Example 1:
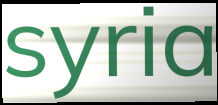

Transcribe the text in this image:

syria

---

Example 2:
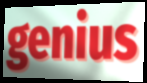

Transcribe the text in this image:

genius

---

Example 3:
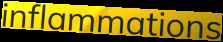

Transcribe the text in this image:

inflammations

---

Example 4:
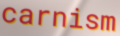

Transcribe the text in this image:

carnism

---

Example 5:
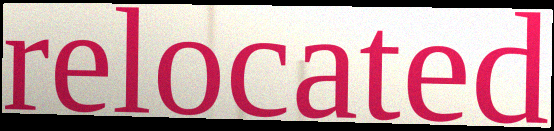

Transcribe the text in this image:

relocated